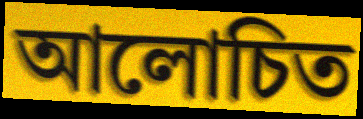
আলোচিত